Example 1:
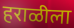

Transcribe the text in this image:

हराळीला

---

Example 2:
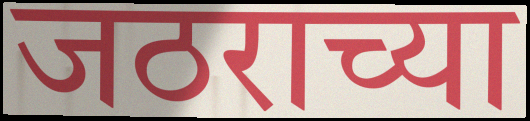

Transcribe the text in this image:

जठराच्या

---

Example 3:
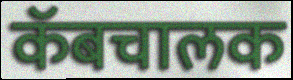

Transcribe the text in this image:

कॅबचालक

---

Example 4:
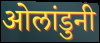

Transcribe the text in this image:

ओलांडुनी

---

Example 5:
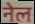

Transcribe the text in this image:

नेल